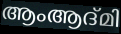
ആംആദ്മി